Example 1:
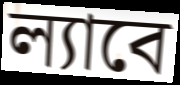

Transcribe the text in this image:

ল্যাবে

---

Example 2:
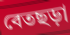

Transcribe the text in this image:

বেতছড়া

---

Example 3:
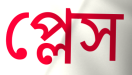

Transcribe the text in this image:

প্লেস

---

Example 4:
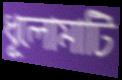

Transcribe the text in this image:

ধূলোমাটি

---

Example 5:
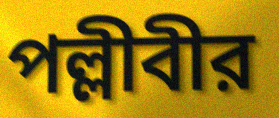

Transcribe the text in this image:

পল্লীবীর